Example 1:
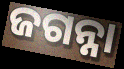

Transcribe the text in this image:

ଜଗନ୍ନା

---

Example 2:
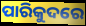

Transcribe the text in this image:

ପାରିକୁଦରେ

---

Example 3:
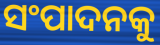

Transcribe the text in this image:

ସଂପାଦନକୁ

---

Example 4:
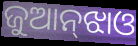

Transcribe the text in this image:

ଜୁଆନ୍‌ଝାଓ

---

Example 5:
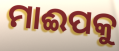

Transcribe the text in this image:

ମାଈପକୁ